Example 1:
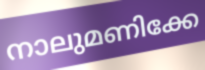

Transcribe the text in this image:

നാലുമണിക്കേ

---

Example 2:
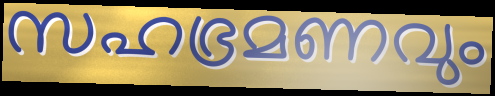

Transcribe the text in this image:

സഹഭ്രമണവും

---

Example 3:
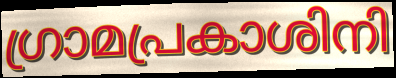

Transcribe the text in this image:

ഗ്രാമപ്രകാശിനി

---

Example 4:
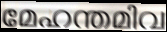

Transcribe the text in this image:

മേഹന്തമിവ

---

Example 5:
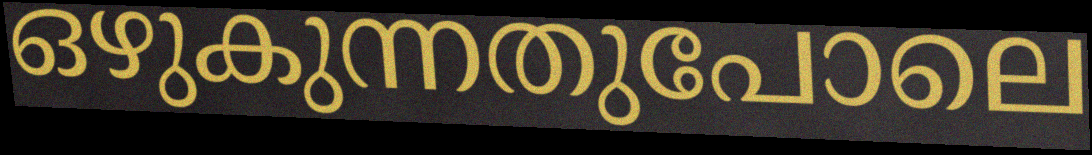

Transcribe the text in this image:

ഒഴുകുന്നതുപോലെ